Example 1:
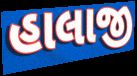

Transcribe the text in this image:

હાલાજી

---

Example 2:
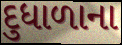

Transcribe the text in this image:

દુધાળાના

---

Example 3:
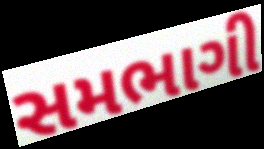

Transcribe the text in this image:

સમભાગી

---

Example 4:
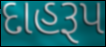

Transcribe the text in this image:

દાહરૂપ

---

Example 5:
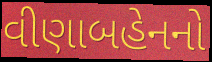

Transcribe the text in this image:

વીણાબહેનનો